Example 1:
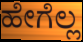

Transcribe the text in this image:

ಹೇಗೆಲ್ಲ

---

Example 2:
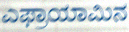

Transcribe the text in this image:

ಎಫ್ರಾಯಾಮಿನ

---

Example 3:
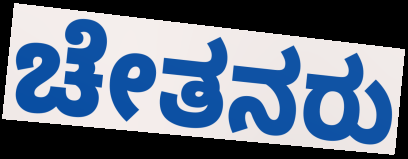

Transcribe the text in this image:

ಚೇತನರು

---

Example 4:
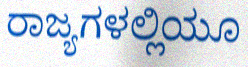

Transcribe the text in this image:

ರಾಜ್ಯಗಳಲ್ಲಿಯೂ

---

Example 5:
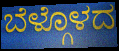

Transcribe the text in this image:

ಬೆಳ್ಗೊಳದ